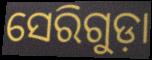
ସେରିଗୁଡ଼ା